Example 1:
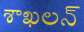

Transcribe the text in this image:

శాఖలన్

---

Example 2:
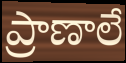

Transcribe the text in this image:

ప్రాణాలే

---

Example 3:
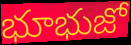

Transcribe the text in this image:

భూభుజో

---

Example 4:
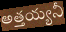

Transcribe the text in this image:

అత్తయ్యనీ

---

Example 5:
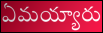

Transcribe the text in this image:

ఏమయ్యారు